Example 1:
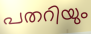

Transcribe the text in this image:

പതറിയും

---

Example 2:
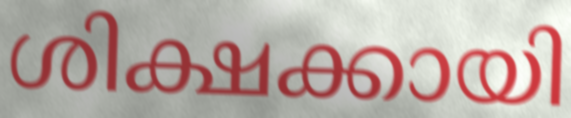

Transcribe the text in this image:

ശിക്ഷക്കായി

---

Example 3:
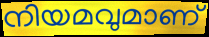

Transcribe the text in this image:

നിയമവുമാണ്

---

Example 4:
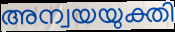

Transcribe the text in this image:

അന്വയയുക്തി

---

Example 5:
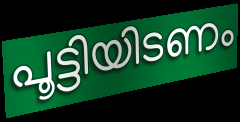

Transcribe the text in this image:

പൂട്ടിയിടണം